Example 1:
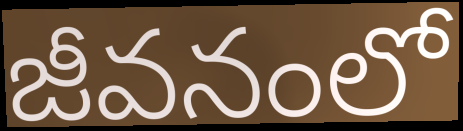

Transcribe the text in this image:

జీవనంలో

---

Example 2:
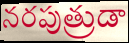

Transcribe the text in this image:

నరపుత్రుడా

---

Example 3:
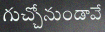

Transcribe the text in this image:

గుచ్చోనుండావే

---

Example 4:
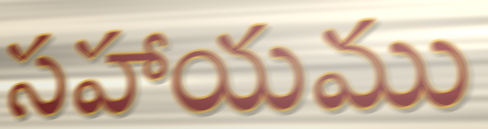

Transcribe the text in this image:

సహాయము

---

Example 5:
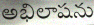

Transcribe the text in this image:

అభిలాషను